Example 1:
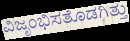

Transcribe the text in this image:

ವಿಜೃಂಭಿಸತೊಡಗಿತ್ತು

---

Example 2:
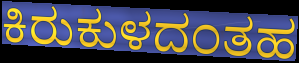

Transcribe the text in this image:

ಕಿರುಕುಳದಂತಹ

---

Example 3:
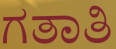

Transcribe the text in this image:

ಗತಾತಿ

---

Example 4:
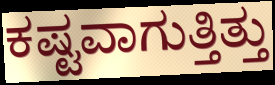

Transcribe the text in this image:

ಕಷ್ಟವಾಗುತ್ತಿತ್ತು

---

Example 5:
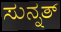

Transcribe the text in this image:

ಸುನ್ನತ್